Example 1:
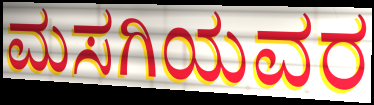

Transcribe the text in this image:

ಮಸಗಿಯವರ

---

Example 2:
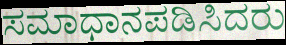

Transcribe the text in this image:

ಸಮಾಧಾನಪಡಿಸಿದರು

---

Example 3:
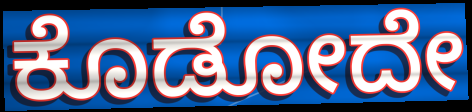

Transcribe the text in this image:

ಕೊಡೋದೇ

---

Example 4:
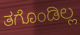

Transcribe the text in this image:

ತಗೊಂಡಿಲ್ಲ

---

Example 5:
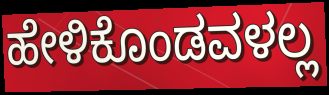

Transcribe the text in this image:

ಹೇಳಿಕೊಂಡವಳಲ್ಲ